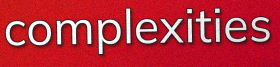
complexities